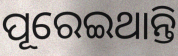
ପୂରେଇଥାନ୍ତି